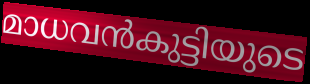
മാധവൻകുട്ടിയുടെ